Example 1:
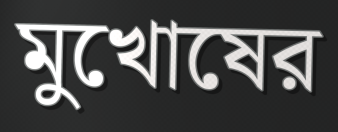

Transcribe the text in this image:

মুখোষের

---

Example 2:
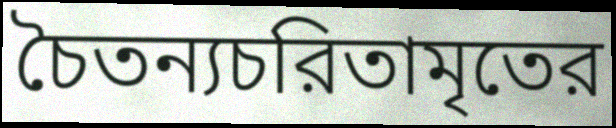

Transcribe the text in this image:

চৈতন্যচরিতামৃতের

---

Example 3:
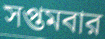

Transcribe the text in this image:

সপ্তমবার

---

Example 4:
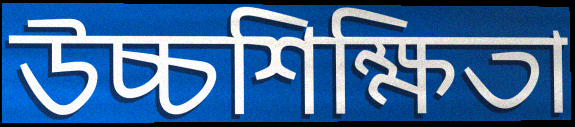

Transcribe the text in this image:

উচ্চশিক্ষিতা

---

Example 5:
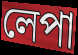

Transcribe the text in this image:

লেপা